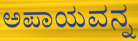
ಅಪಾಯವನ್ನ